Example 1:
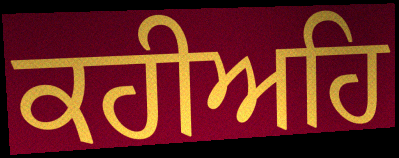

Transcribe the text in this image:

ਕਹੀਅਹਿ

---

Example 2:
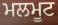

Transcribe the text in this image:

ਮਲਮੂਟ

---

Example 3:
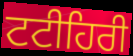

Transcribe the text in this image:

ਟਟੀਹਿਰੀ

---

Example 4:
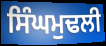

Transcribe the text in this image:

ਸਿੰਘਮੁਢਲੀ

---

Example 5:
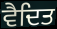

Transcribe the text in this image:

ਵੈਦਿਤ